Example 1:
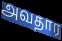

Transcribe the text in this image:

அவதார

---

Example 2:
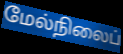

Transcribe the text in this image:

மேல்நிலைப்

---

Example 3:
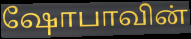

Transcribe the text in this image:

ஷோபாவின்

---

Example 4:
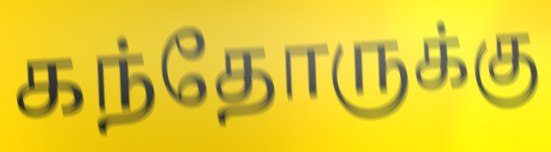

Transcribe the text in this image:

கந்தோருக்கு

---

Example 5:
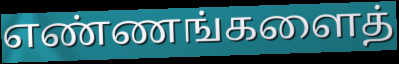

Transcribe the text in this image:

எண்ணங்களைத்